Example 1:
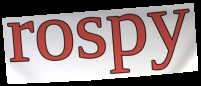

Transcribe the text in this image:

rospy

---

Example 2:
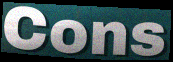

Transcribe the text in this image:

Cons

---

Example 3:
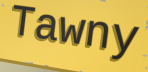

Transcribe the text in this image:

Tawny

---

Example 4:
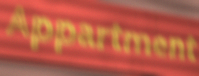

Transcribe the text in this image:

Appartment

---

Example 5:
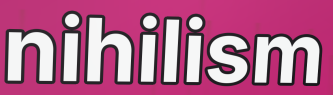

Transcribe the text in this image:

nihilism